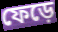
ফেড়ে